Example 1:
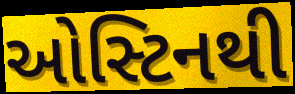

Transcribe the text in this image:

ઓસ્ટિનથી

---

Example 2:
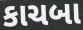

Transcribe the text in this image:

કાચબા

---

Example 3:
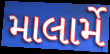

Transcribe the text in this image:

માલાર્મે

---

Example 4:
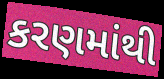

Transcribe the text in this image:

કરણમાંથી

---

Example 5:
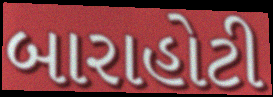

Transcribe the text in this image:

બારાહોટી